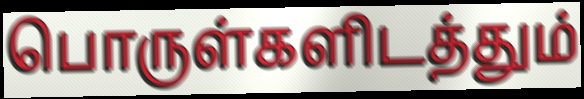
பொருள்களிடத்தும்